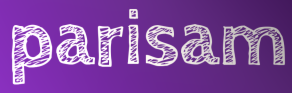
parisam